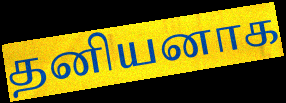
தனியனாக